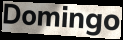
Domingo